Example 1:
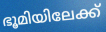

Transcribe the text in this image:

ഭൂമിയിലേക്ക്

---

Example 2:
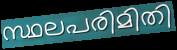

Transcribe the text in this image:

സ്ഥലപരിമിതി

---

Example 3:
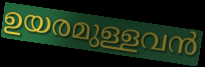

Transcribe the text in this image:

ഉയരമുള്ളവൻ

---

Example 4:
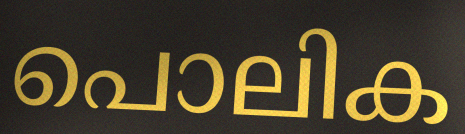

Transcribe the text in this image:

പൊലിക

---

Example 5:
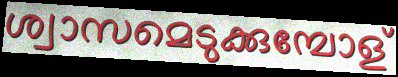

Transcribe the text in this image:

ശ്വാസമെടുക്കുമ്പോള്